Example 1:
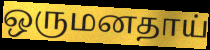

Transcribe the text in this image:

ஒருமனதாய்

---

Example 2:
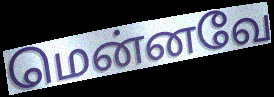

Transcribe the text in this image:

மென்னவே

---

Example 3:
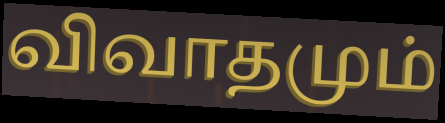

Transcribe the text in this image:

விவாதமும்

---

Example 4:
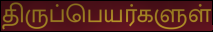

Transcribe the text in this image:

திருப்பெயர்களுள்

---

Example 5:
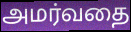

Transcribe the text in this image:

அமர்வதை